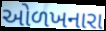
ઓળખનારા